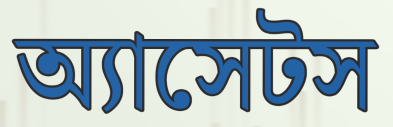
অ্যাসেটস